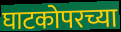
घाटकोपरच्या